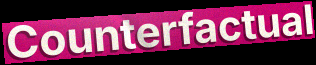
Counterfactual